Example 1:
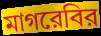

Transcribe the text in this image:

মাগরেবির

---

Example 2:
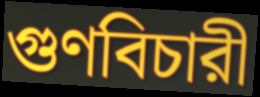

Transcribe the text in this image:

গুণবিচারী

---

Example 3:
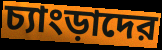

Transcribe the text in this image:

চ্যাংড়াদের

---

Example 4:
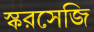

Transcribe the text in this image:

স্করসেজি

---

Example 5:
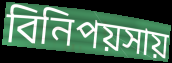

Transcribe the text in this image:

বিনিপয়সায়